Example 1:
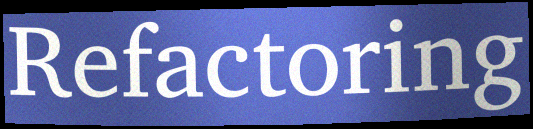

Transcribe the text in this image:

Refactoring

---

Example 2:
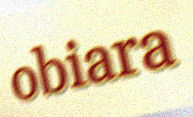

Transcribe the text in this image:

obiara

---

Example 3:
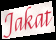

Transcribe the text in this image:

Jakat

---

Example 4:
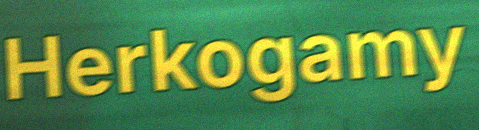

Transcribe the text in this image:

Herkogamy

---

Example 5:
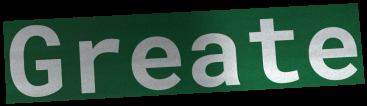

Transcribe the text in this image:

Greate